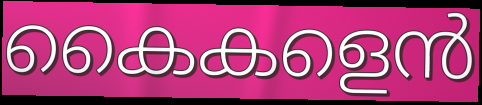
കൈകളെൻ